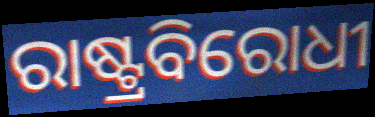
ରାଷ୍ଟ୍ରବିରୋଧୀ